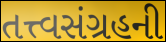
તત્ત્વસંગ્રહની